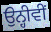
ਉਨ੍ਹੀਵੀਂ